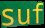
suf